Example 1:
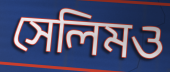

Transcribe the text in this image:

সেলিমও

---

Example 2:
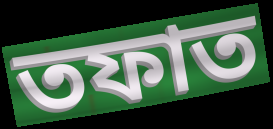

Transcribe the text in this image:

তফাত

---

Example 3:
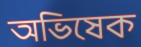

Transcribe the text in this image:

অভিষেক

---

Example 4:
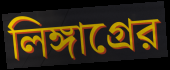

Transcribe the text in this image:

লিঙ্গাগ্রের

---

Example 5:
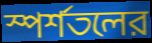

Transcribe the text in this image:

স্পর্শতলের